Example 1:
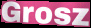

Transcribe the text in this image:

Grosz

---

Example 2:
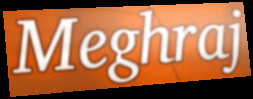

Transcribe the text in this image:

Meghraj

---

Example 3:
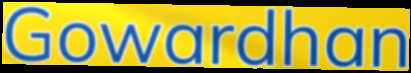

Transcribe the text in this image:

Gowardhan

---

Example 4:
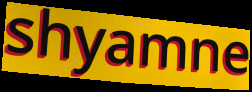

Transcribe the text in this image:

shyamne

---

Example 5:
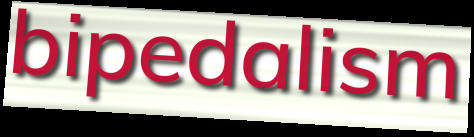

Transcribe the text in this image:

bipedalism